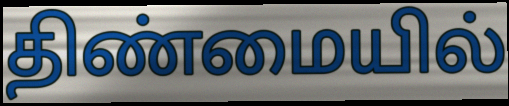
திண்மையில்